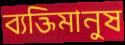
ব্যক্তিমানুষ